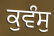
ਕੁਵੰਸੁ